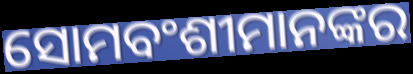
ସୋମବଂଶୀମାନଙ୍କର